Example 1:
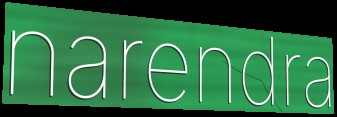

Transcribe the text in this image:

narendra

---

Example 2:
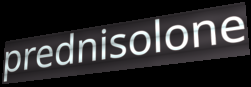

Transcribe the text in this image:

prednisolone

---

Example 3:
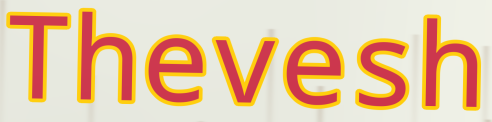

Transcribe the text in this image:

Thevesh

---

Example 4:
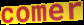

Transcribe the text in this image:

comer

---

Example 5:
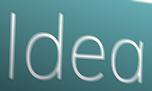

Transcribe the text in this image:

Idea